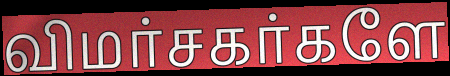
விமர்சகர்களே